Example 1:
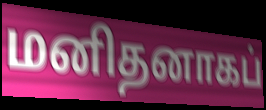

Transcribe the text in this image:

மனிதனாகப்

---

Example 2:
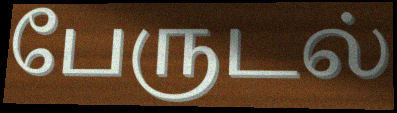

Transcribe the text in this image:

பேருடல்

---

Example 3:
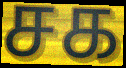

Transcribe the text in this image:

சக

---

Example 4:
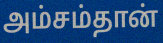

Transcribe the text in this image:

அம்சம்தான்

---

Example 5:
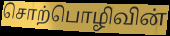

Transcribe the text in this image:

சொற்பொழிவின்